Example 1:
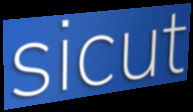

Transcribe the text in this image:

sicut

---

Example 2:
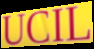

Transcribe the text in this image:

UCIL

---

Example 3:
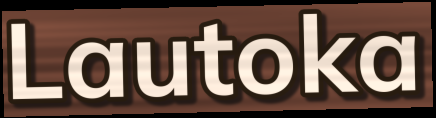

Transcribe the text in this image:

Lautoka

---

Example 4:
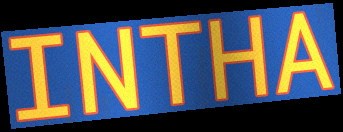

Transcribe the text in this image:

INTHA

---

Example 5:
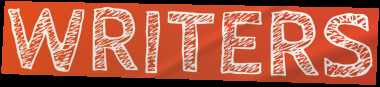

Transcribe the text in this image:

WRITERS